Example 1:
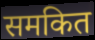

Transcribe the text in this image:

समकित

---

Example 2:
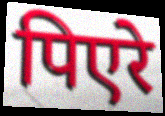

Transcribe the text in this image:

पिएरे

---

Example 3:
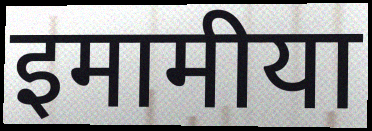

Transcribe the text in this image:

इमामीया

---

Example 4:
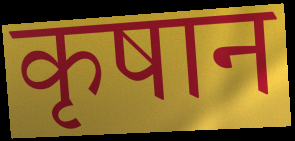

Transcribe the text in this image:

कृषान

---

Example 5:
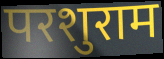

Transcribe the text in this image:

परशुराम